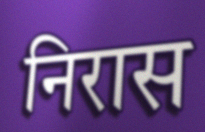
निरास